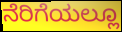
ನೆರಿಗೆಯಲ್ಲೂ